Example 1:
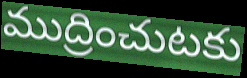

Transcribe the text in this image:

ముద్రించుటకు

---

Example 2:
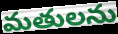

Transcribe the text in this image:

మతులను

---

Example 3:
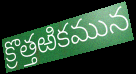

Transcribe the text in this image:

క్రొత్తఱికమున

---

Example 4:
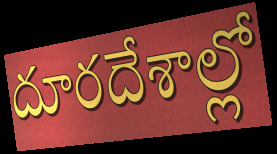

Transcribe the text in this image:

దూరదేశాల్లో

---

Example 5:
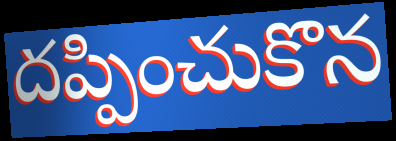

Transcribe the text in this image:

దప్పించుకొన